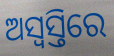
ଅସ୍ୱସ୍ତିରେ